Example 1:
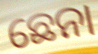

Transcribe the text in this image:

ଛେନା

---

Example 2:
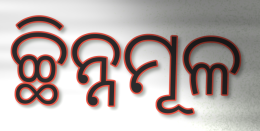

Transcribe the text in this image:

ଚ୍ଛିନ୍ନମୂଳ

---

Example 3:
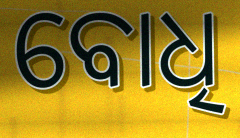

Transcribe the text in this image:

ବୋଧି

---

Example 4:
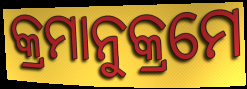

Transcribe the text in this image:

କ୍ରମାନୁକ୍ରମେ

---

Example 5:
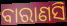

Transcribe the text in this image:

ବାରାଣସି